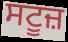
ਸਟੂਜ਼